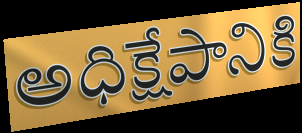
అధిక్షేపానికి